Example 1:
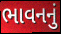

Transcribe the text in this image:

ભાવનનું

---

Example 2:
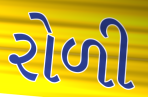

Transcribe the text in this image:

રોળી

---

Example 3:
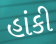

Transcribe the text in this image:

હાંકી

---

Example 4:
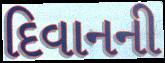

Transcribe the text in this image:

દિવાનની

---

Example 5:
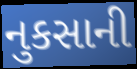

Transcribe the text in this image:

નુકસાની